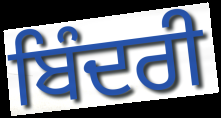
ਬਿੰਦਰੀ